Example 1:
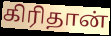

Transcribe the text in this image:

கிரிதான்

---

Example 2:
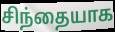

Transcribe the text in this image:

சிந்தையாக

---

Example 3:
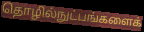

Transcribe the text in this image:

தொழில்நுட்பங்களைக்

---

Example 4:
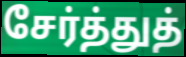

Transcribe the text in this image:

சேர்த்துத்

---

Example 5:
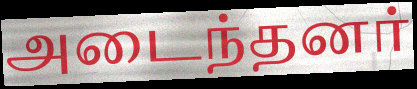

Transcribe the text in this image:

அடைந்தனர்